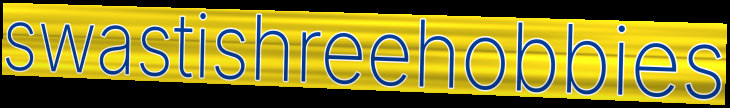
swastishreehobbies